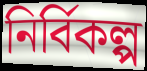
নির্বিকল্প